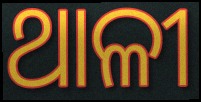
ଥାଳୀ